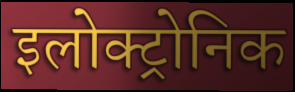
इलोक्ट्रोनिक